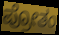
ಪ್ರೋತಂ